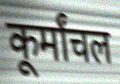
कूर्मांचल